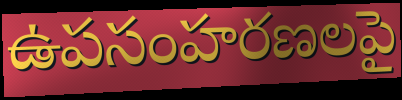
ఉపసంహరణలపై